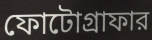
ফোটোগ্রাফার